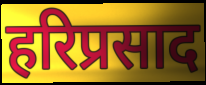
हरिप्रसाद